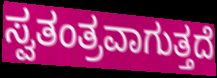
ಸ್ವತಂತ್ರವಾಗುತ್ತದೆ